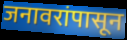
जनावरांपासून